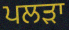
ਪਲੜਾ